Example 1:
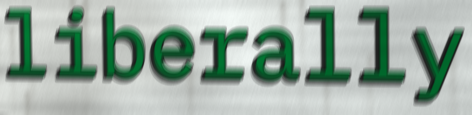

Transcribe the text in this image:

liberally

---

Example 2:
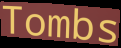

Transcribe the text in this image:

Tombs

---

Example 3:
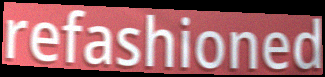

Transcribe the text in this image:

refashioned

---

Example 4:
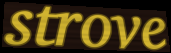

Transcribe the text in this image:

strove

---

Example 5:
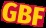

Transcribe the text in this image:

GBF